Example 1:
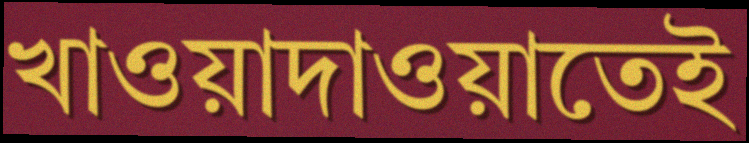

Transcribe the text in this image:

খাওয়াদাওয়াতেই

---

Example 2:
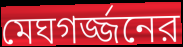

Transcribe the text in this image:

মেঘগর্জ্জনের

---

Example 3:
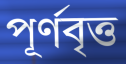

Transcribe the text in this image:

পূর্ণবৃত্ত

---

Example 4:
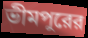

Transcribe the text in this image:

ভীমপুরের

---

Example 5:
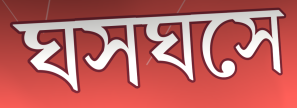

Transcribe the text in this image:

ঘসঘসে